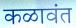
कळावंत